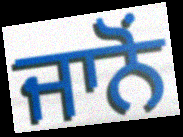
ਜਾਨੋਂ